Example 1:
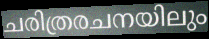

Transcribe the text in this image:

ചരിത്രരചനയിലും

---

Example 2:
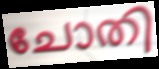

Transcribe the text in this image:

ചോതി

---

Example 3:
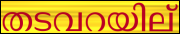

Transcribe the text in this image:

തടവറയില്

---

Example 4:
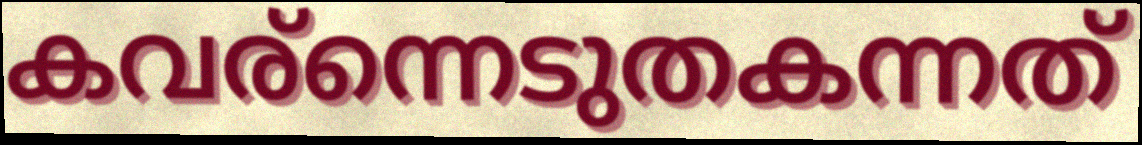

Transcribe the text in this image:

കവര്ന്നെടുതകന്നത്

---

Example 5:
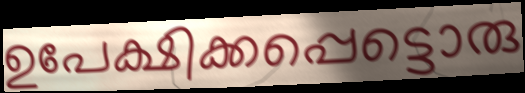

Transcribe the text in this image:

ഉപേക്ഷിക്കപ്പെട്ടൊരു